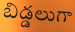
బిడ్డలుగా